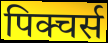
पिक्चर्स